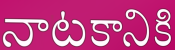
నాటకానికి